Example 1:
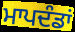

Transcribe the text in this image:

ਮਾਪਦੰਡਾਂ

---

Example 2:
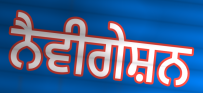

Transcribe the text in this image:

ਨੈਵੀਗੇਸ਼ਨ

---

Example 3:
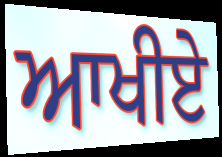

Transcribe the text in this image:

ਆਖੀਏ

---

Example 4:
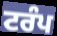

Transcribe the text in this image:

ਟਰੰਪ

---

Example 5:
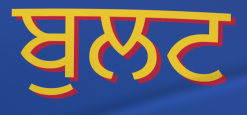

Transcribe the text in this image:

ਬੁਲਟ